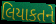
લિયાકતને